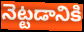
నెట్టడానికి